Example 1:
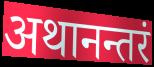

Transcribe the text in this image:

अथानन्तरं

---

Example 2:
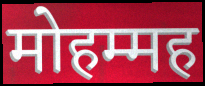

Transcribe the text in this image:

मोहम्मह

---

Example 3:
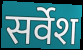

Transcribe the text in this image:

सर्वेश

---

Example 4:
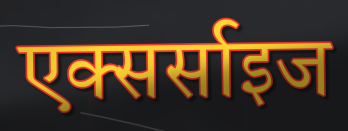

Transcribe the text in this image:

एक्सर्साइज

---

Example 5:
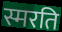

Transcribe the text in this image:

स्मरति